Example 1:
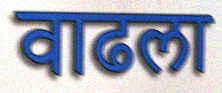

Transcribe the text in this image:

वाढला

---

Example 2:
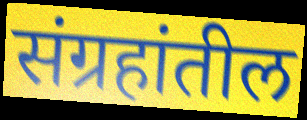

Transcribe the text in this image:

संग्रहांतील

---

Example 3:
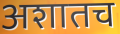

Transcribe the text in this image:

अशातच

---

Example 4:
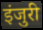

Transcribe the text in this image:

इंजुरी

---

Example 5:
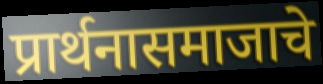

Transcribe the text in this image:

प्रार्थनासमाजाचे